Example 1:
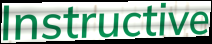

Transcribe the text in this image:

Instructive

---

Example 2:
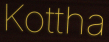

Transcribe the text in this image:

Kottha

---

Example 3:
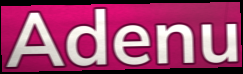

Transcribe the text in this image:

Adenu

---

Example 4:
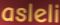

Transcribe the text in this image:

asleli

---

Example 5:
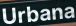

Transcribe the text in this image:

Urbana